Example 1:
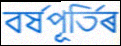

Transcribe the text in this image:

বৰ্ষপূৰ্তিৰ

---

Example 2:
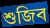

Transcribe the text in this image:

শুজিব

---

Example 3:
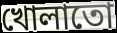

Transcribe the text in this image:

খোলাতো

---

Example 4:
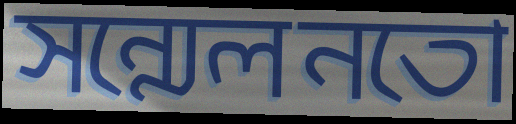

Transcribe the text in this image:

সন্মেলনতো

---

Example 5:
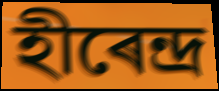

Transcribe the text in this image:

হীৰেন্দ্ৰ